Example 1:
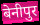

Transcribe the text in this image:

बेनीपुर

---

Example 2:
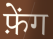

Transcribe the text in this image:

फ़ेंग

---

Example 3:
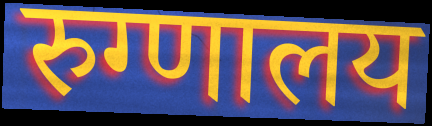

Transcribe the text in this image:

रुग्णालय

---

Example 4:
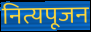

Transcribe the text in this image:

नित्यपूजन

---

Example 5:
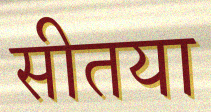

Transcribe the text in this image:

सीतया